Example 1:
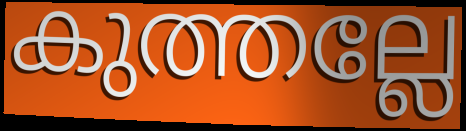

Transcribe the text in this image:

കുത്തല്ലേ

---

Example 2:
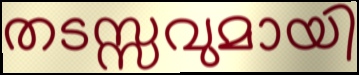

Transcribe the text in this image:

തടസ്സവുമായി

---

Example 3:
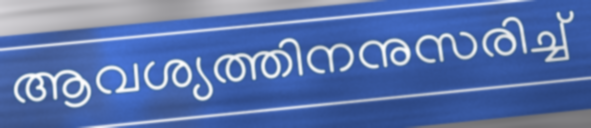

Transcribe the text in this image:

ആവശ്യത്തിനനുസരിച്ച്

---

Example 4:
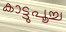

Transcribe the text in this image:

കാട്ടുപൂച്ച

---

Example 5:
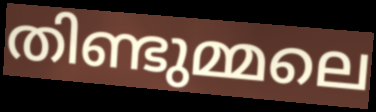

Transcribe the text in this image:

തിണ്ടുമ്മലെ